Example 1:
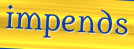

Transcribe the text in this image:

impends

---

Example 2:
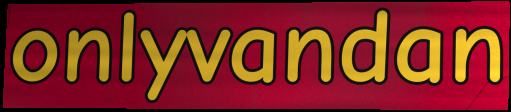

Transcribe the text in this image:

onlyvandan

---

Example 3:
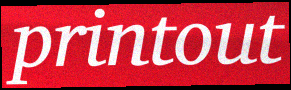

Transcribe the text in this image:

printout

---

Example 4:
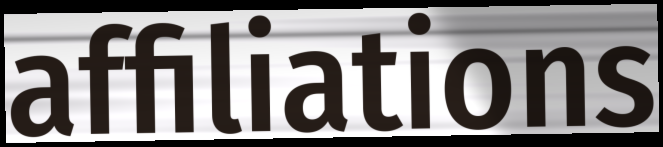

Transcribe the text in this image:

affiliations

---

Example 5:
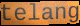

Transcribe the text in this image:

telang